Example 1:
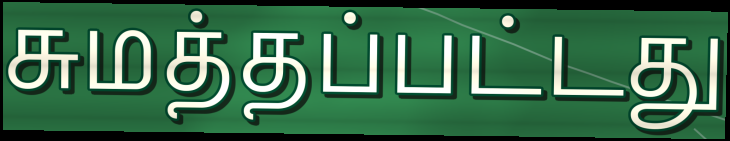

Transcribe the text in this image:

சுமத்தப்பட்டது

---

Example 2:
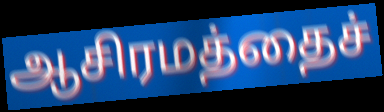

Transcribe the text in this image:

ஆசிரமத்தைச்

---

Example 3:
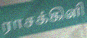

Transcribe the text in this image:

ராசக்கிளி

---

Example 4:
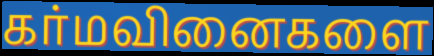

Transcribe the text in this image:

கர்மவினைகளை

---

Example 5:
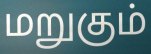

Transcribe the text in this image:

மறுகும்